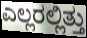
ಎಲ್ಲರಲ್ಲಿತ್ತು